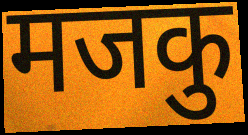
मजकु